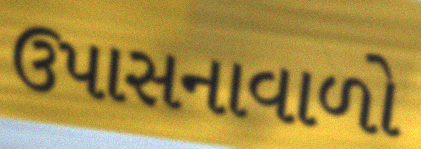
ઉપાસનાવાળો